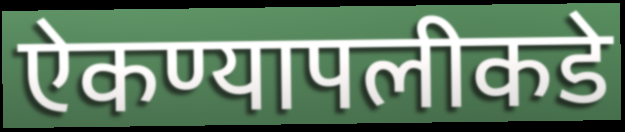
ऐकण्यापलीकडे